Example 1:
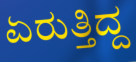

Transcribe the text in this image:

ಏರುತ್ತಿದ್ದ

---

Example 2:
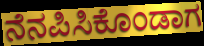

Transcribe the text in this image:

ನೆನಪಿಸಿಕೊಂಡಾಗ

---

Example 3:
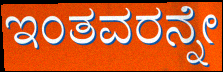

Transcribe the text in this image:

ಇಂತವರನ್ನೇ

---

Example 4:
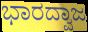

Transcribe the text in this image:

ಭಾರದ್ವಾಜ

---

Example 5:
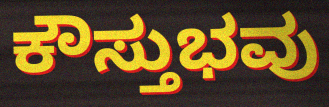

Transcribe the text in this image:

ಕೌಸ್ತುಭವು